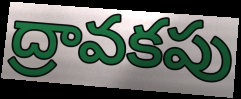
ద్రావకపు